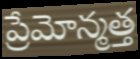
ప్రేమోన్మత్త